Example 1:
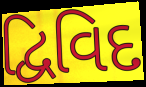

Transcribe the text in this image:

દ્વિવિદ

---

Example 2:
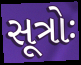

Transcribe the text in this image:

સૂત્રોઃ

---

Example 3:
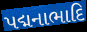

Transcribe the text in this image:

પદ્મનાભાદિ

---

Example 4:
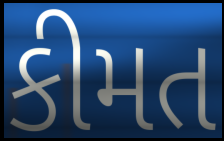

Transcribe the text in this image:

કીમત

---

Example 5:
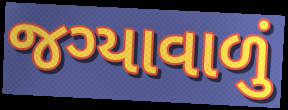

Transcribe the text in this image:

જગ્યાવાળું